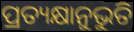
ପ୍ରତ୍ୟକ୍ଷାନୁଭୁତି